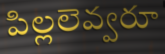
పిల్లలెవ్వరూ